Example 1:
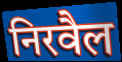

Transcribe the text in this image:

निरवैल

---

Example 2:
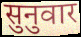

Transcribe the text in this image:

सुनुवार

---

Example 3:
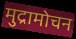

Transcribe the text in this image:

मुद्रामोचन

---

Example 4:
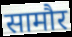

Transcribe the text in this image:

सामौर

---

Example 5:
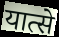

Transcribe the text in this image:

यात्से